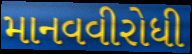
માનવવીરોધી